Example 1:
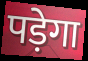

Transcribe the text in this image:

पड़ेगा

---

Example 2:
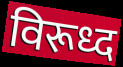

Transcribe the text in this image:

विरूध्द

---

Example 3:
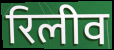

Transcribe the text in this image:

रिलीव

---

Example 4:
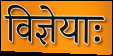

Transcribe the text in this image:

विज्ञेयाः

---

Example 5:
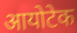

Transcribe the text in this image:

आयोटेक